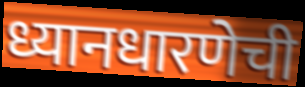
ध्यानधारणेची